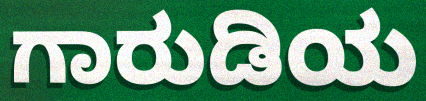
ಗಾರುಡಿಯ